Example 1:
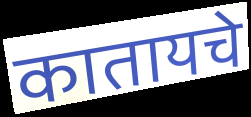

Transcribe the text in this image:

कातायचे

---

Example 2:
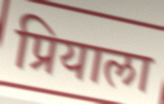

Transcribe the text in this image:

प्रियाला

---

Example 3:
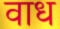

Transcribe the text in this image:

वाध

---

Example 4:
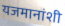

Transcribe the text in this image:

यजमानांशी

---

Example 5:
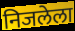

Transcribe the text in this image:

निजलेला